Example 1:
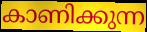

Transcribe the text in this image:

കാണിക്കുന്ന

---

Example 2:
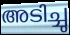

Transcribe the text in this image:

അടിച്ചു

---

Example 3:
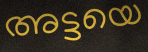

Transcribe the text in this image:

അട്ടയെ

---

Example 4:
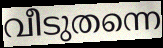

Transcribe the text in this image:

വീടുതന്നെ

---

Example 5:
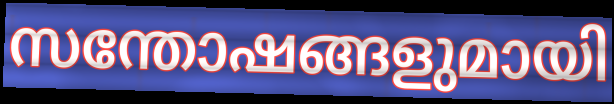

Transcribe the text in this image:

സന്തോഷങ്ങളുമായി